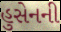
હુસેનની